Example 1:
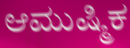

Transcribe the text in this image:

ಆಮುಷ್ಮಿಕ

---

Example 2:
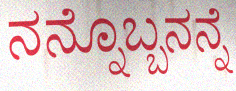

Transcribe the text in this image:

ನನ್ನೊಬ್ಬನನ್ನೆ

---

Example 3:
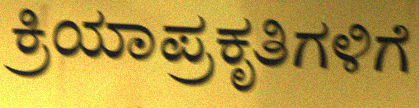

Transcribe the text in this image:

ಕ್ರಿಯಾಪ್ರಕೃತಿಗಳಿಗೆ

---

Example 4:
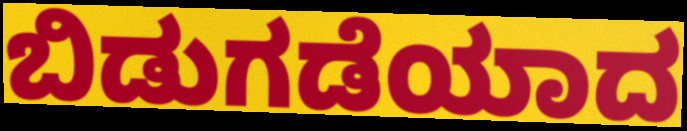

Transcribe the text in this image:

ಬಿಡುಗಡೆಯಾದ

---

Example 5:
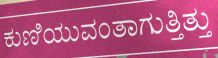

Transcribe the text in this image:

ಕುಣಿಯುವಂತಾಗುತ್ತಿತ್ತು